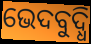
ଭେଦବୁଦ୍ଧି